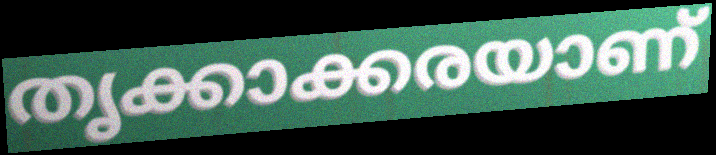
തൃക്കാക്കരയാണ്